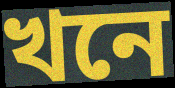
খনে